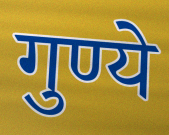
गुण्ये